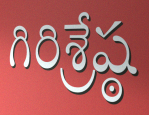
గిరిశ్రేష్ఠ